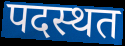
पदस्थत